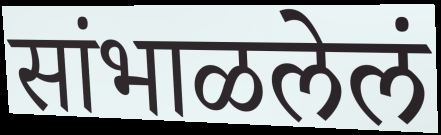
सांभाळलेलं